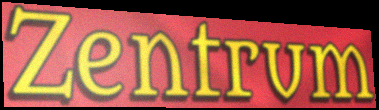
Zentrum